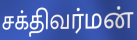
சக்திவர்மன்